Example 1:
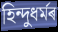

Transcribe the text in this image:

হিন্দুধৰ্মৰ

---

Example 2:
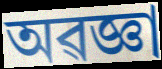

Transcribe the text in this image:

অৱজ্ঞা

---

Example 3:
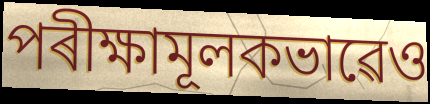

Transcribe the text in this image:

পৰীক্ষামূলকভাৱেও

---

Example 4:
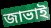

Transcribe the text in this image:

জাভাই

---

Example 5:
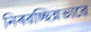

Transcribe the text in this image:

নিৰৱচ্ছিন্নভাৱে